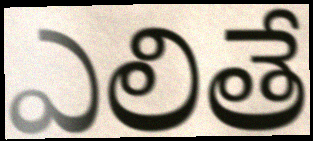
ఎలితే